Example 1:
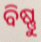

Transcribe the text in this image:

ବିଷ୍ଣୁ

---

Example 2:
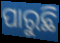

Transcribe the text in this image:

ପାରୁଛି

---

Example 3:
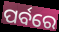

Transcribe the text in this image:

ପର୍ବରେ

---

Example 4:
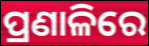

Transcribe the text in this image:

ପ୍ରଣାଳିରେ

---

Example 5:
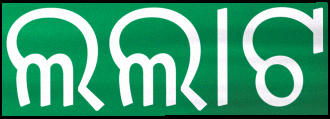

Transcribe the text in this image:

ଲଲାଟ